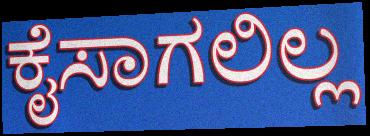
ಕೈಸಾಗಲಿಲ್ಲ